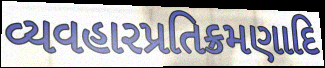
વ્યવહારપ્રતિક્રમણાદિ